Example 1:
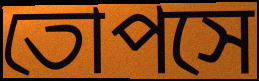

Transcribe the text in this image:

তোপসে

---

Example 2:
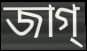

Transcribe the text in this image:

জাগ্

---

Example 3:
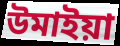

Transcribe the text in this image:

উমাইয়া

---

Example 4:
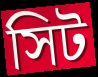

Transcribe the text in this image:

সিট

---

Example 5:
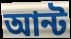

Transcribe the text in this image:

আন্ট